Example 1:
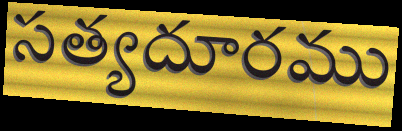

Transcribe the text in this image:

సత్యదూరము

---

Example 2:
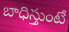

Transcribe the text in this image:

బాధిస్తుంటే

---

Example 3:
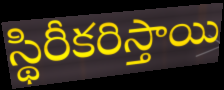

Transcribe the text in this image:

స్థిరీకరిస్తాయి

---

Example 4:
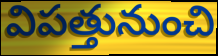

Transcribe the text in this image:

విపత్తునుంచి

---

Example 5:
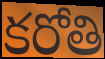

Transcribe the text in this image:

కరోతి